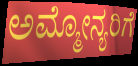
ಅಮ್ಮೋನ್ಯರಿಗೆ